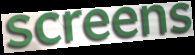
screens